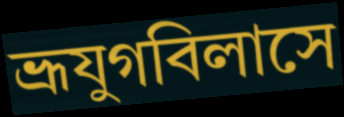
ভ্রূযুগবিলাসে